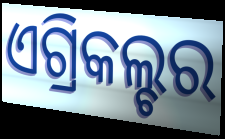
ଏଗ୍ରିକଲ୍ଚର